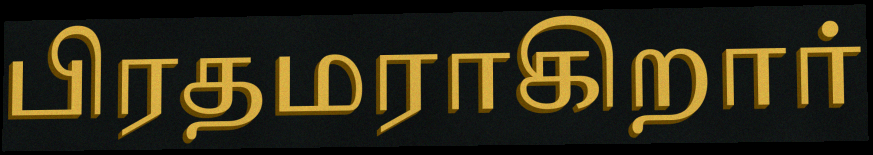
பிரதமராகிறார்